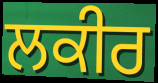
ਲਕੀਰ